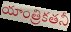
యాంత్రికతనీ